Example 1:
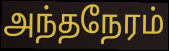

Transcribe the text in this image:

அந்தநேரம்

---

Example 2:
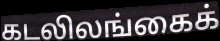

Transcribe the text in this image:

கடலிலங்கைக்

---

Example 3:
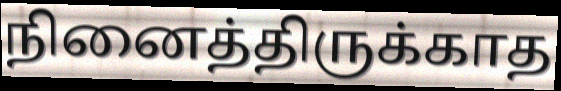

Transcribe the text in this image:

நினைத்திருக்காத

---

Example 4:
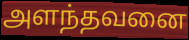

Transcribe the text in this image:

அளந்தவனை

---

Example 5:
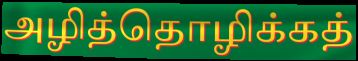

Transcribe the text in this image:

அழித்தொழிக்கத்